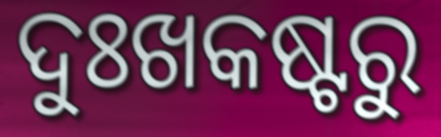
ଦୁଃଖକଷ୍ଟରୁ